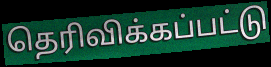
தெரிவிக்கப்பட்டு